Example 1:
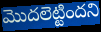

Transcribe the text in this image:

మొదలెట్టిందని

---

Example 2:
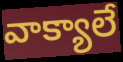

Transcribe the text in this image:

వాక్యాలే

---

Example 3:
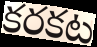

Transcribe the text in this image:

కరకట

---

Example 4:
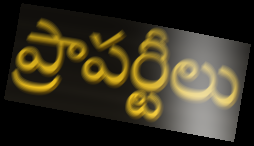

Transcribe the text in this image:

ప్రాపర్టీలు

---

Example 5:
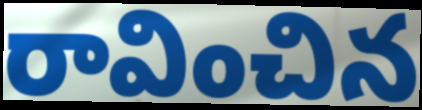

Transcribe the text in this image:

రావించిన